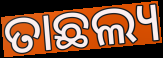
ତାଛଲ୍ୟ